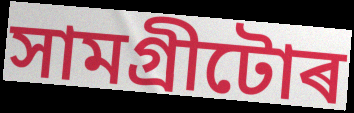
সামগ্ৰীটোৰ